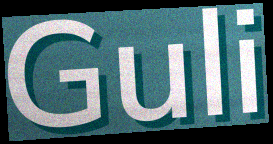
Guli